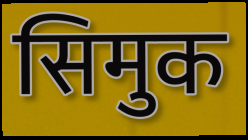
सिमुक